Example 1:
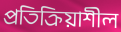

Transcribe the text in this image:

প্ৰতিক্ৰিয়াশীল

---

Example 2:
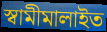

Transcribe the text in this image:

স্বামীমালাইত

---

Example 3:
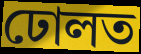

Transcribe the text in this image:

ঢোলত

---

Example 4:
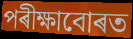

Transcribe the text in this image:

পৰীক্ষাবোৰত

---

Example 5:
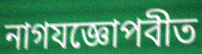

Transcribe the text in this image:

নাগযজ্ঞোপবীত